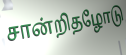
சான்றிதழோடு